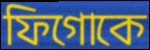
ফিগোকে